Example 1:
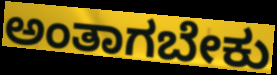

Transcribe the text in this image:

ಅಂತಾಗಬೇಕು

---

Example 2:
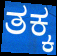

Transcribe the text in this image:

ತಕ್ಕ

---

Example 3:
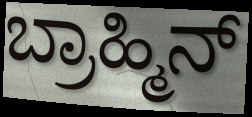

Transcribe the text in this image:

ಬ್ರಾಹ್ಮಿನ್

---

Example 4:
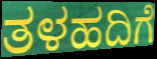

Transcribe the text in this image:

ತಳಹದಿಗೆ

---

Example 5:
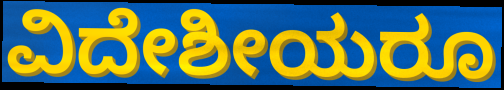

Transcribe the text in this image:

ವಿದೇಶೀಯರೂ